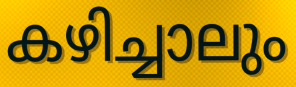
കഴിച്ചാലും